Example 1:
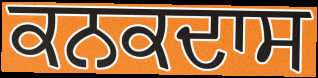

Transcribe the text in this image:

ਕਨਕਦਾਸ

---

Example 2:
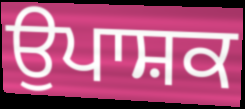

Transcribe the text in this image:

ਉਪਾਸ਼ਕ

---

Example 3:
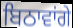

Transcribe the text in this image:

ਬਿਠਾਵਾਂਗੇ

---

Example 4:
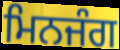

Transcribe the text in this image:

ਮਿਨਜੰਗ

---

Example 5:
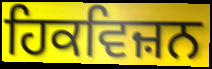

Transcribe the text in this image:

ਹਿਕਵਿਜ਼ਨ